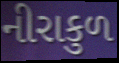
નીરાકુળ